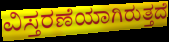
ವಿಸ್ತರಣೆಯಾಗಿರುತ್ತದೆ